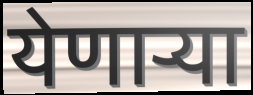
येणार्‍या